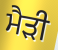
ਮੈੜੀ